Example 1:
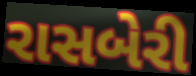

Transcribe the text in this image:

રાસબેરી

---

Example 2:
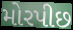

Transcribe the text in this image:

મોરપીછ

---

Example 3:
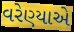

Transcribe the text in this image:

વરેણ્યાએ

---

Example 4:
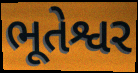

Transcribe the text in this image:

ભૂતેશ્વર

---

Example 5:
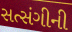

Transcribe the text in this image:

સત્સંગીની